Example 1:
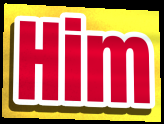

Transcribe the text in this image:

Him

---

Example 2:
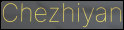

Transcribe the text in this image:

Chezhiyan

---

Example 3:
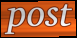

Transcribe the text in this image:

post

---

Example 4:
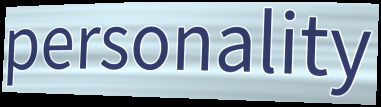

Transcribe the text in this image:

personality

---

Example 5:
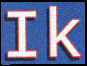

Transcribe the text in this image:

Ik